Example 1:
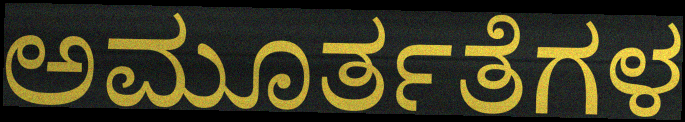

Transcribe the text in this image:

ಅಮೂರ್ತತೆಗಳ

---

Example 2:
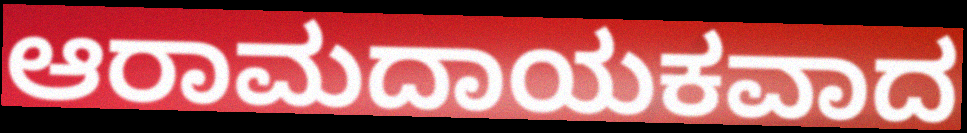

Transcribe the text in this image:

ಆರಾಮದಾಯಕವಾದ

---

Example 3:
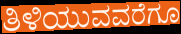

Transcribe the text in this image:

ತಿಳಿಯುವವರೆಗೂ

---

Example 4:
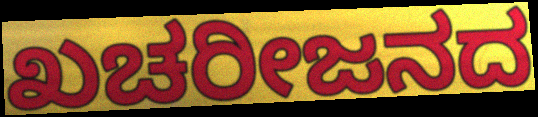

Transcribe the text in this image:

ಖಚರೀಜನದ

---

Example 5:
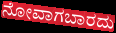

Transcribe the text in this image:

ನೋವಾಗಬಾರದು